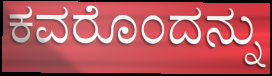
ಕವರೊಂದನ್ನು